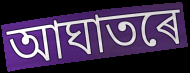
আঘাতৰে